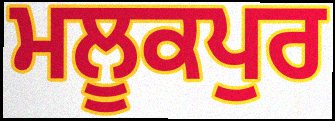
ਮਲੂਕਪੁਰ